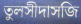
তুলসীদাসজি